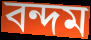
বন্দম